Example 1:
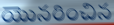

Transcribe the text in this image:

యొనరించిన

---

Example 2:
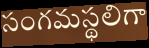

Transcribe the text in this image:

సంగమస్థలిగా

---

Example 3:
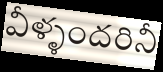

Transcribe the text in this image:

వీళ్ళందరినీ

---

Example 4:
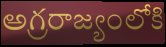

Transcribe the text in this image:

అగ్రరాజ్యంలోకి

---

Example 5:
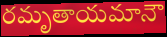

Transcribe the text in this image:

రమృతాయమానౌ